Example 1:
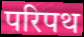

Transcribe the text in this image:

परिपथ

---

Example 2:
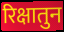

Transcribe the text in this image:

रिक्षातुन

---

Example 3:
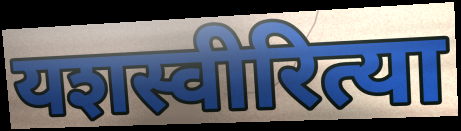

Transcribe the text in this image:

यशस्वीरित्या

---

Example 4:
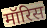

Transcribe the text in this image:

मॉरिस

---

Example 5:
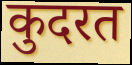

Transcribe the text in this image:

कुदरत